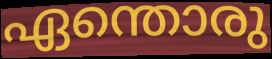
ഏന്തൊരു